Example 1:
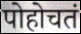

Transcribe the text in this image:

पोहोचतं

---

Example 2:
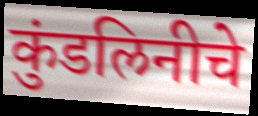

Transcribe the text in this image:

कुंडलिनीचे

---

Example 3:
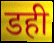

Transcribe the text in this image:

डही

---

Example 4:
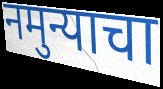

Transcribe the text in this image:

नमुन्याचा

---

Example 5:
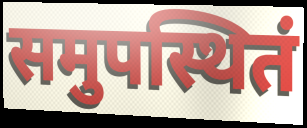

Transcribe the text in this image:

समुपस्थितं